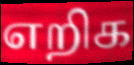
எறிக